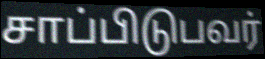
சாப்பிடுபவர்